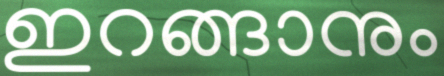
ഇറങ്ങാനും